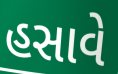
હસાવે